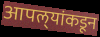
आपल्यांकडून